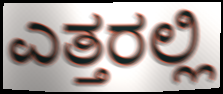
ಎತ್ತರಲ್ಲಿ